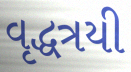
વૃદ્ધત્રયી